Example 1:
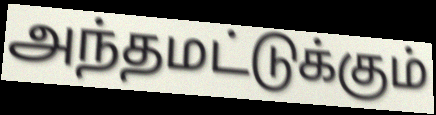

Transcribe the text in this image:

அந்தமட்டுக்கும்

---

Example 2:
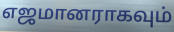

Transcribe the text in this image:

எஜமானராகவும்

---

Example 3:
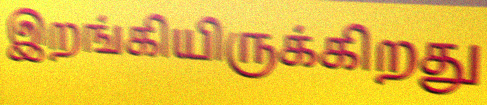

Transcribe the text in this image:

இறங்கியிருக்கிறது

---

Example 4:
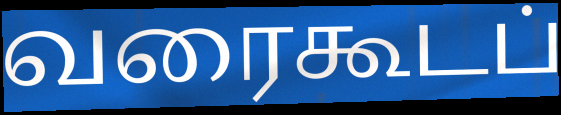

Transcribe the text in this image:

வரைகூடப்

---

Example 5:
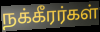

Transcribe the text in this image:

நக்கீரர்கள்